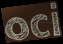
oci